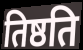
तिष्ठति